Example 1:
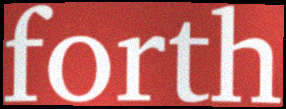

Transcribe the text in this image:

forth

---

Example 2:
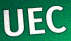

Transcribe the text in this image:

UEC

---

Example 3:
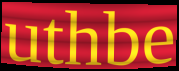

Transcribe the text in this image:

uthbe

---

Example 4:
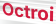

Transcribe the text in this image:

Octroi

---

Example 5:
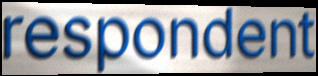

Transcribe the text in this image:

respondent